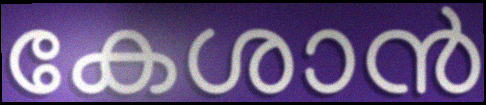
കേശാൻ